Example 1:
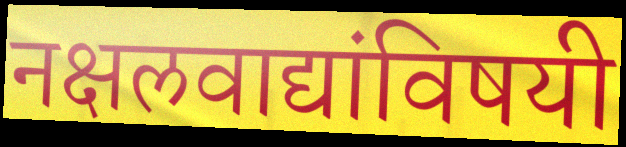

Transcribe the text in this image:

नक्षलवाद्यांविषयी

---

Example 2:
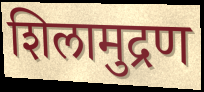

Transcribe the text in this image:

शिलामुद्रण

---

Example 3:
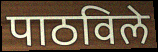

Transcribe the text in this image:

पाठविले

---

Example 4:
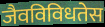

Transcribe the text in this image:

जैवविविधतेस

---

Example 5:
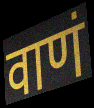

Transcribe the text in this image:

वाणं